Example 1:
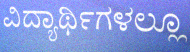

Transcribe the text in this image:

ವಿದ್ಯಾರ್ಥಿಗಳಲ್ಲೂ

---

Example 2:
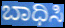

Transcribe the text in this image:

ಬಾಧಿಸಿ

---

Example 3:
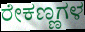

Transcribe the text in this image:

ರೇಕಣ್ಣಗಳ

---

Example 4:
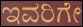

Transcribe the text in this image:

ಇವರಿಗೇ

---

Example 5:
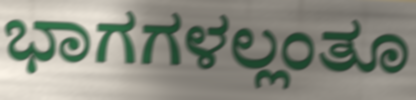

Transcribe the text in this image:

ಭಾಗಗಳಲ್ಲಂತೂ